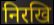
निरखि